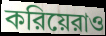
করিয়েরাও